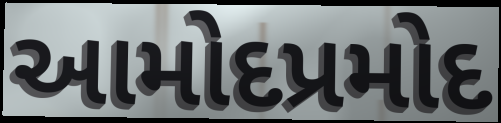
આમોદપ્રમોદ